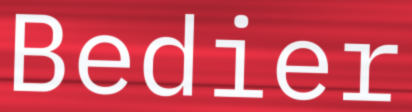
Bedier